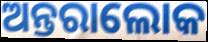
ଅନ୍ତରାଲୋକ